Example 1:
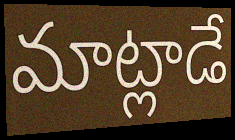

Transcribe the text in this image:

మాట్లాడే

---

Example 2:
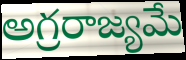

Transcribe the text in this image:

అగ్రరాజ్యమే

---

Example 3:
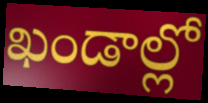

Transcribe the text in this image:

ఖండాల్లో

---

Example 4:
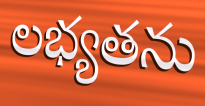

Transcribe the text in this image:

లభ్యతను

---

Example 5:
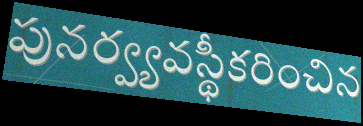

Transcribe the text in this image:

పునర్వ్యవస్థీకరించిన